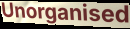
Unorganised